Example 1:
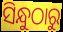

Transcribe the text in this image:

ସିନ୍ଧୁଠାରୁ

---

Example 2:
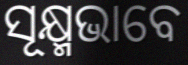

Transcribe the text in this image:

ସୂକ୍ଷ୍ମଭାବେ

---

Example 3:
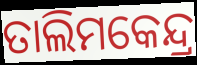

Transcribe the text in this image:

ତାଲିମକେନ୍ଦ୍ର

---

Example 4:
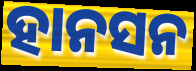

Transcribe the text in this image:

ହାନସନ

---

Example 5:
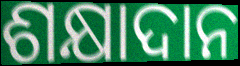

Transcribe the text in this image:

ଶକ୍ଷାଦାନ